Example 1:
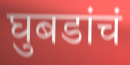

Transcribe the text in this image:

घुबडांचं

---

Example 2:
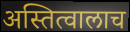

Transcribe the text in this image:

अस्तित्वालाच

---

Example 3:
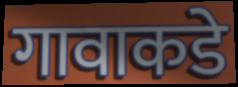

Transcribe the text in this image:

गावाकडे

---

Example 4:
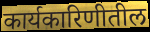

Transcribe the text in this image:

कार्यकारिणीतील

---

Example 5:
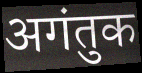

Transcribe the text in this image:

अगंतुक